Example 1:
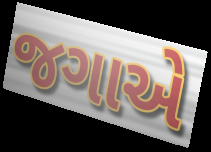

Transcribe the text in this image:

જગાએ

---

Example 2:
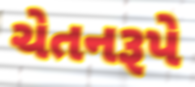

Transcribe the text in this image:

ચેતનરૂપે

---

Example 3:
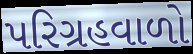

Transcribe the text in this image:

પરિગ્રહવાળો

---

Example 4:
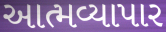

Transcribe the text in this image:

આત્મવ્યાપાર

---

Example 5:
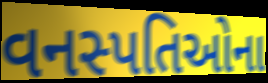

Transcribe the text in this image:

વનસ્પતિઓના